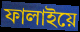
ফালাইয়ে